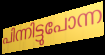
പിന്നിട്ടുപോന്ന